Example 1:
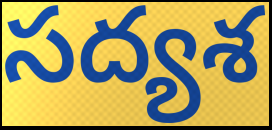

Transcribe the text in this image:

సద్యశ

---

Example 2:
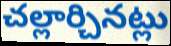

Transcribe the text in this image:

చల్లార్చినట్లు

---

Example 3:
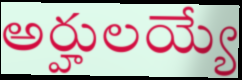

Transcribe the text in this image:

అర్హులయ్యే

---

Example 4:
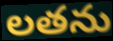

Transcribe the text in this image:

లతను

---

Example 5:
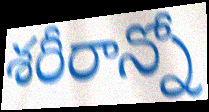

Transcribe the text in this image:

శరీరాన్నో